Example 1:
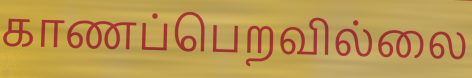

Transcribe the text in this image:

காணப்பெறவில்லை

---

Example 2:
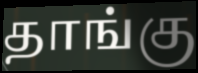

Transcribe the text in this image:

தாங்கு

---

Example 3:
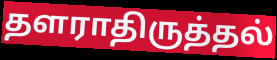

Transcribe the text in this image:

தளராதிருத்தல்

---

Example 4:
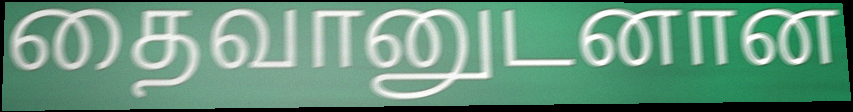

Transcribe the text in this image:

தைவானுடனான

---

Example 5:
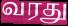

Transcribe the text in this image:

வரது